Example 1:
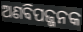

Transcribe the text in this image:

ଅଣବିପଜ୍ଜନକ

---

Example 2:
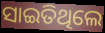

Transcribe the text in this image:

ସାଇତିଥିଲେ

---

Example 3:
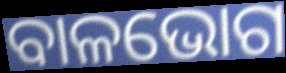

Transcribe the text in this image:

ବାଳଭୋଗ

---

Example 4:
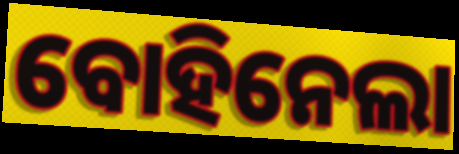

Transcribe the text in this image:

ବୋହିନେଲା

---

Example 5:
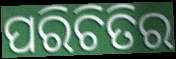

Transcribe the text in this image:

ପରିଚିତିର